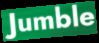
Jumble